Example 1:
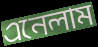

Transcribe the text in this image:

এনেলাম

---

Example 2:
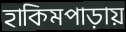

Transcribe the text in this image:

হাকিমপাড়ায়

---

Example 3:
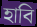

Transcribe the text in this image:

হাবি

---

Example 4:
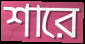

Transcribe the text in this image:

শারে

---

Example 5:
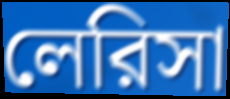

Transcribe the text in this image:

লেরিসা